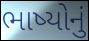
ભાષ્યોનું